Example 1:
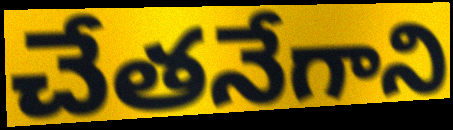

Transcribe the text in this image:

చేతనేగాని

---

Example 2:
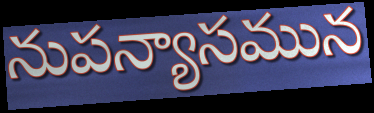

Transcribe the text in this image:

నుపన్యాసమున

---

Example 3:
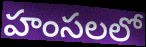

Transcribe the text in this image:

హంసలలో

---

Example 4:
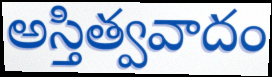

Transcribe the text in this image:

అస్తిత్వవాదం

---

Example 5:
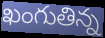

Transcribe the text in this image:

ఖంగుతిన్న